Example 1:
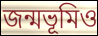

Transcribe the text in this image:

জন্মভূমিও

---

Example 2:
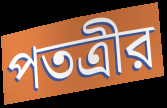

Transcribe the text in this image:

পতত্রীর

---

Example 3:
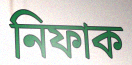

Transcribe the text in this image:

নিফাক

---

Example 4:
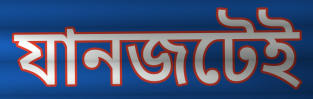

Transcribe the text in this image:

যানজটেই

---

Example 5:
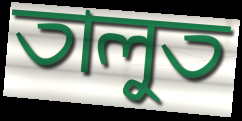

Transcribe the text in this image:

তালুত